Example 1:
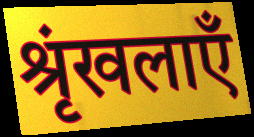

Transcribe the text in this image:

श्रृंखलाएँ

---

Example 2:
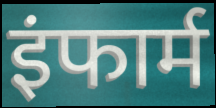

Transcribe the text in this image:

इंफार्म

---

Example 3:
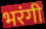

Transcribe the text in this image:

भरंगी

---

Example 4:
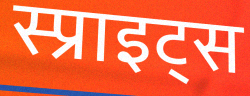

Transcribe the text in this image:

स्प्राइट्स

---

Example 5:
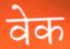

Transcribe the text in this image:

वेक